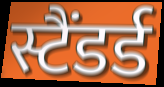
स्टैंडर्ड